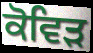
ਕੋਵਿਡ਼